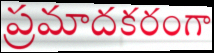
ప్రమాదకరంగా